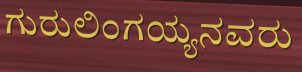
ಗುರುಲಿಂಗಯ್ಯನವರು